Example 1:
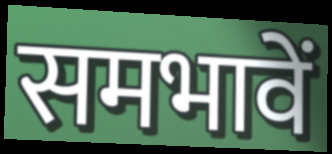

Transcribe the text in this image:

समभावें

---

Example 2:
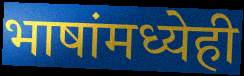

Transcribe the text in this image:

भाषांमध्येही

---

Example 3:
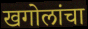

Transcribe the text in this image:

खगोलांचा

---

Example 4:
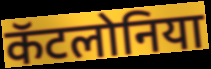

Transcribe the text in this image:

कॅटलोनिया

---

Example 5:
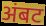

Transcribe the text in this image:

अंबट